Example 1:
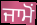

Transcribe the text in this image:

ਜਾਮੋਂ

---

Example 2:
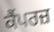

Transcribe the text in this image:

ਕੈਂਪਰਜ਼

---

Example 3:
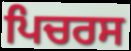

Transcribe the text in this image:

ਪਿਚਰਸ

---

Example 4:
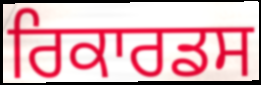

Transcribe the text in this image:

ਰਿਕਾਰਡਸ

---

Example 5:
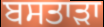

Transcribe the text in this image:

ਬਸਤਾੜਾ